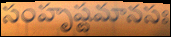
సంహృష్టమానసః